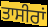
ਤਾਸੀਰਾਂ